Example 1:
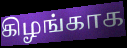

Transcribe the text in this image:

கிழங்காக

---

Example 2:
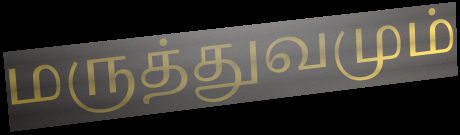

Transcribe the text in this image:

மருத்துவமும்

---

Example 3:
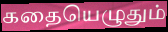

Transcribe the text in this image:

கதையெழுதும்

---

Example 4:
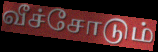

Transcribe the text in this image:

வீச்சோடும்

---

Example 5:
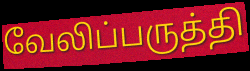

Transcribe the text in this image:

வேலிப்பருத்தி